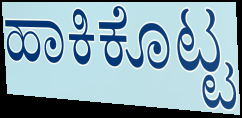
ಹಾಕಿಕೊಟ್ಟ